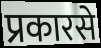
प्रकारसे